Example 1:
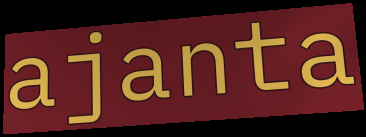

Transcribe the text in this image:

ajanta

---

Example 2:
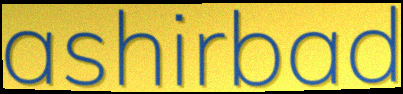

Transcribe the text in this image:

ashirbad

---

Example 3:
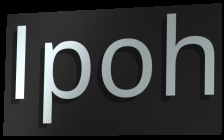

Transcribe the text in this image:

Ipoh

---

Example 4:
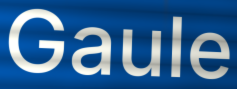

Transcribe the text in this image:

Gaule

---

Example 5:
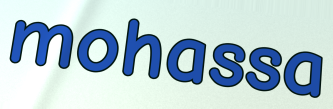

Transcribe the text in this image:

mohassa